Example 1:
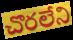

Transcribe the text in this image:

చొరలేని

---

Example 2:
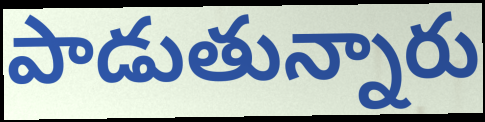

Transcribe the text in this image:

పాడుతున్నారు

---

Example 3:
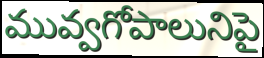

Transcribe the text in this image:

మువ్వగోపాలునిపై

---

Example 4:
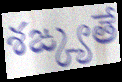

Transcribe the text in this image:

శఙ్క్యతే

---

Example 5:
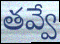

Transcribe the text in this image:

తవ్వే